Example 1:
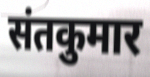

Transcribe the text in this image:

संतकुमार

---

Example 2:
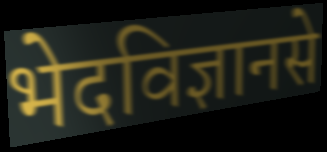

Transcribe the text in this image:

भेदविज्ञानसे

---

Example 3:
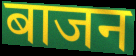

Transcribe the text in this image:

बाजन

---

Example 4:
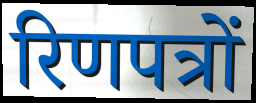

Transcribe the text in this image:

रिणपत्रों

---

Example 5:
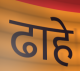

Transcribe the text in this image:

ढाहे